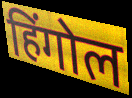
हिंगोल